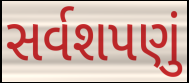
સર્વશપણું